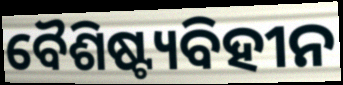
ବୈଶିଷ୍ଟ୍ୟବିହୀନ